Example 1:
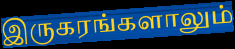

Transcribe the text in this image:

இருகரங்களாலும்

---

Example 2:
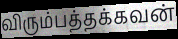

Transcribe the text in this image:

விரும்பத்தக்கவன்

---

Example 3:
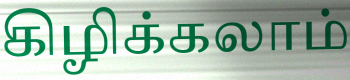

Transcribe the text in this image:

கிழிக்கலாம்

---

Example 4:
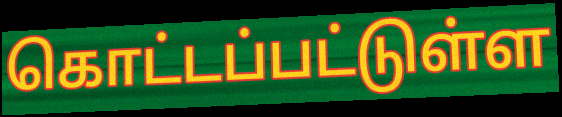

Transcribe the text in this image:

கொட்டப்பட்டுள்ள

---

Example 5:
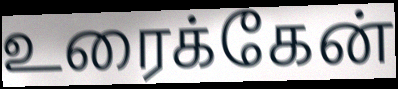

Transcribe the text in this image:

உரைக்கேன்